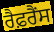
ਰੈਫ਼ਰੈਂਸ